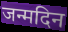
जन्‍मदिन